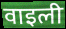
वाइली